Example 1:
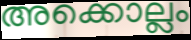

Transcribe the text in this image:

അക്കൊല്ലം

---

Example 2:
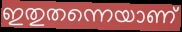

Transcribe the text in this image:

ഇതുതന്നെയാണ്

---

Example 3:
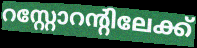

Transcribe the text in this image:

റസ്റ്റോറന്റിലേക്ക്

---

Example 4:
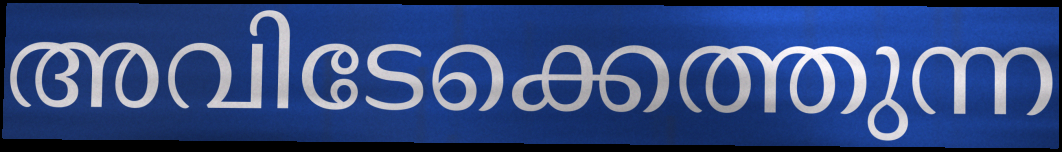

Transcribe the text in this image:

അവിടേക്കെത്തുന്ന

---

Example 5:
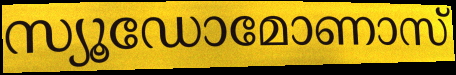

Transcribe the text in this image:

സ്യൂഡോമോണാസ്